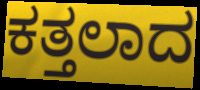
ಕತ್ತಲಾದ